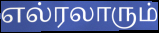
எல்ரலாரும்